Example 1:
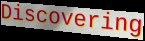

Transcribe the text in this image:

Discovering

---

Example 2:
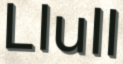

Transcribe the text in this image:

Llull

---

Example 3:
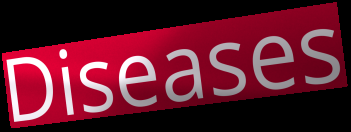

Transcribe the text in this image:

Diseases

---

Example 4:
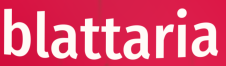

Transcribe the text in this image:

blattaria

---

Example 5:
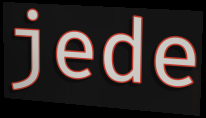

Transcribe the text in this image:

jede